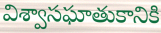
విశ్వాసఘాతుకానికి